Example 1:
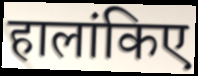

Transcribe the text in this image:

हालांकिए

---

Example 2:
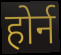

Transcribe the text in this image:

होर्न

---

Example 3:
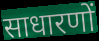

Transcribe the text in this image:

साधारणों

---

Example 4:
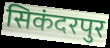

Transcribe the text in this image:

सिकंदरपुर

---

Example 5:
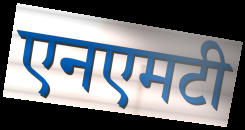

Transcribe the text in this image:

एनएमटी